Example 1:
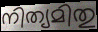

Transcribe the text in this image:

നിത്യമിതു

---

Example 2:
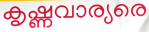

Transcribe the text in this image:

കൃഷ്ണവാര്യരെ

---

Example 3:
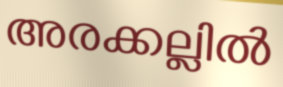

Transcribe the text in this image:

അരക്കല്ലിൽ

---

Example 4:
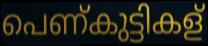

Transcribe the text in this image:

പെണ്കുട്ടികള്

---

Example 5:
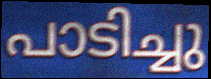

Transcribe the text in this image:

പാടിച്ചു